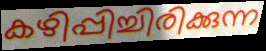
കഴിപ്പിച്ചിരിക്കുന്ന